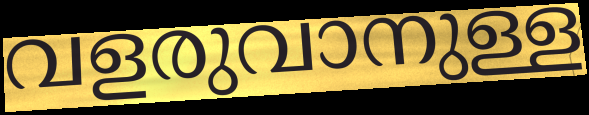
വളരുവാനുള്ള